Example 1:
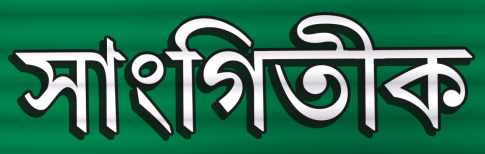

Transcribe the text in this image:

সাংগিতীক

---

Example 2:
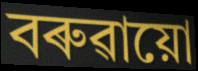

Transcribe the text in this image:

বৰুৱায়ো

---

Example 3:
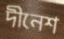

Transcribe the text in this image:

দীনেশ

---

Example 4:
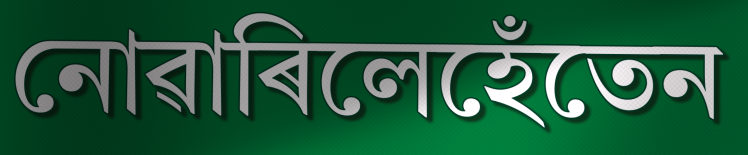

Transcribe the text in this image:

নোৱাৰিলেহেঁতেন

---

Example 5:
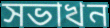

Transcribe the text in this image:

সভাখন